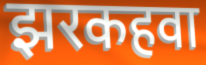
झरकहवा